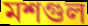
মশগুল